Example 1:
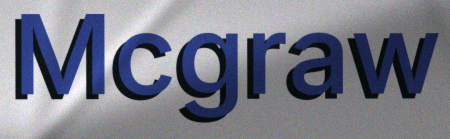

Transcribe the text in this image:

Mcgraw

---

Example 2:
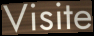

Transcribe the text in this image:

Visite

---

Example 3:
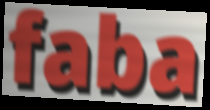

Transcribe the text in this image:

faba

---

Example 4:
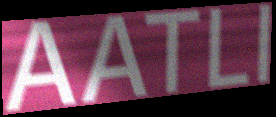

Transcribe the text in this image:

AATLI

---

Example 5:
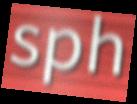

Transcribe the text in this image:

sph